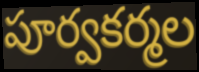
పూర్వకర్మల